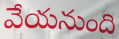
వేయనుంది